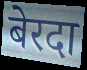
बेरदा